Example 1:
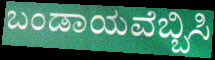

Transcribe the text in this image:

ಬಂಡಾಯವೆಬ್ಬಿಸಿ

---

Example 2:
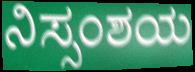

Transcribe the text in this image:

ನಿಸ್ಸಂಶಯ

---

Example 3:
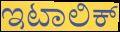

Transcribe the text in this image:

ಇಟಾಲಿಕ್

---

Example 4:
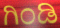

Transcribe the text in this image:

ಗಿಂಡಿ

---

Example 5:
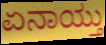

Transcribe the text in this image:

ಏನಾಯ್ತು